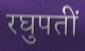
रघुपतीं